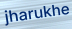
jharukhe